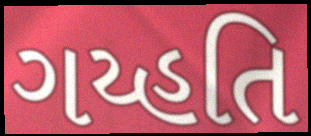
ગય્હતિ